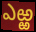
ఎఱ్ఱ